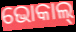
ଭୋକାଲ୍